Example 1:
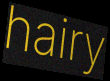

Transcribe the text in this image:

hairy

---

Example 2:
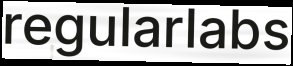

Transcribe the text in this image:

regularlabs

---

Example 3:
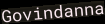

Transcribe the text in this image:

Govindanna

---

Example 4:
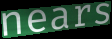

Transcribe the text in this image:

nears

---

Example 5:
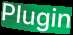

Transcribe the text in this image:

Plugin